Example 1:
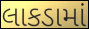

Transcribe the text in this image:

લાકડામાં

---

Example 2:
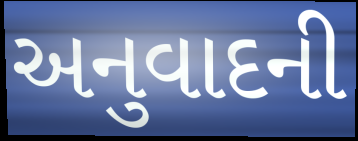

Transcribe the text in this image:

અનુવાદની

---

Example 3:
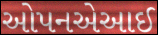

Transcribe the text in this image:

ઓપનએઆઈ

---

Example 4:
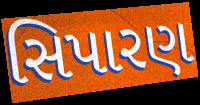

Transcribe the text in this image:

સિપારણ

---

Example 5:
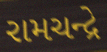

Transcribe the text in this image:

રામચન્દ્રે